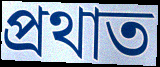
প্ৰথাত